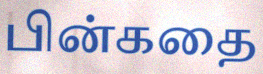
பின்கதை